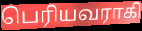
பெரியவராகி